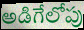
అడిగేలోపు